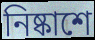
নিষ্কাশে